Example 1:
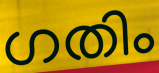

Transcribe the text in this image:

ഗതിം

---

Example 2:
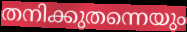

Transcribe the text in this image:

തനിക്കുതന്നെയും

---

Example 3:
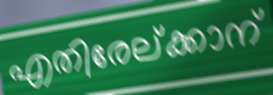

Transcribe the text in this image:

എതിരേല്ക്കാന്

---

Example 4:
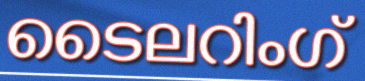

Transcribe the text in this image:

ടൈലറിംഗ്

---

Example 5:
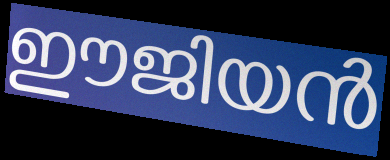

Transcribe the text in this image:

ഈജിയൻ